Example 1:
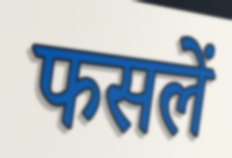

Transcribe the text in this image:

फसलें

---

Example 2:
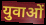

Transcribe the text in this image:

युवाओं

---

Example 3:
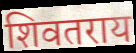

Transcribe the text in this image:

शिवतराय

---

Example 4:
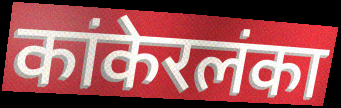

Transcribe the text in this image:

कांकेरलंका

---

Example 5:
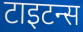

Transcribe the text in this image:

टाइटन्स